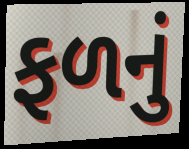
ફળનું